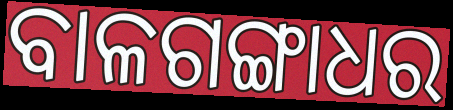
ବାଳଗଙ୍ଗାଧର